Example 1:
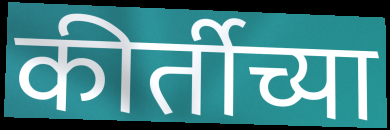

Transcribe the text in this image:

कीर्तीच्या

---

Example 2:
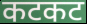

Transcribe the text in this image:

कटकट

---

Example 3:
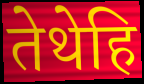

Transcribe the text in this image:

तेथेहि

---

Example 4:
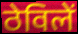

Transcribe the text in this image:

ठेविलें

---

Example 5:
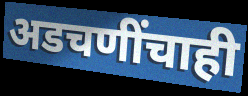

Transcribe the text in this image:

अडचणींचाही